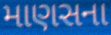
માણસના